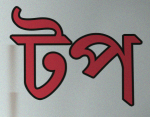
টপ